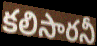
కలిసారనీ